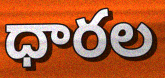
ధారల